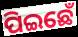
ପିଇଛେଁ